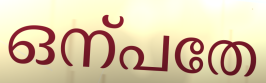
ഒന്പതേ